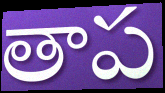
తాప